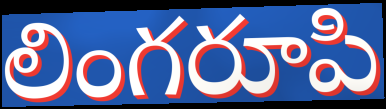
లింగరూపి